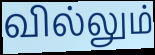
வில்லும்